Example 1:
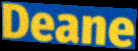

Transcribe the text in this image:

Deane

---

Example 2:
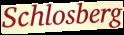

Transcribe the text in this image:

Schlosberg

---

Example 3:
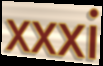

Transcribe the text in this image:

xxxi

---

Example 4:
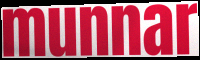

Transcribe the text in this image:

munnar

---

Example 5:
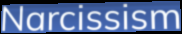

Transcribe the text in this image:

Narcissism